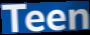
Teen